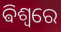
ଵିଶ୍ୱରେ